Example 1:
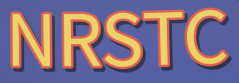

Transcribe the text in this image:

NRSTC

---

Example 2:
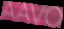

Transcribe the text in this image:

AAVO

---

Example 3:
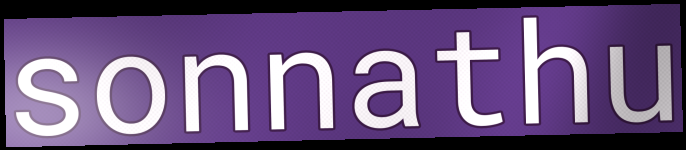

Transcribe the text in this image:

sonnathu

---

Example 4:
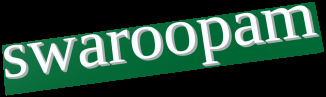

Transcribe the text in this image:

swaroopam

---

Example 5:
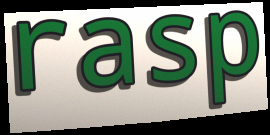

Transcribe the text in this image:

rasp